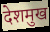
देशमुख